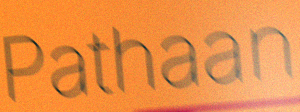
Pathaan